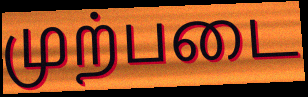
முற்படை